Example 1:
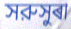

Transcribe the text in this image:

সৰুসুৰা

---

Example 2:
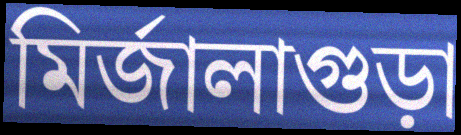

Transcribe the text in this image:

মিৰ্জালাগুড়া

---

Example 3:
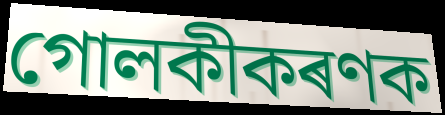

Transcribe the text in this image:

গোলকীকৰণক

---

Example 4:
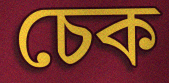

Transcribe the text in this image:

চেক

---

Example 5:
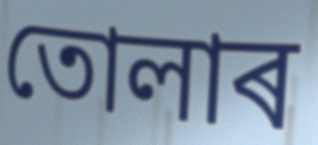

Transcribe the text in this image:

তোলাৰ